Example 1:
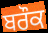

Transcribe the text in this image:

ਬਰੌਕ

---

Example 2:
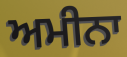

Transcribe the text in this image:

ਅਮੀਨਾ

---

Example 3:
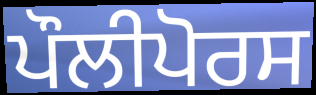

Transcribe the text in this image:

ਪੌਲੀਪੋਰਸ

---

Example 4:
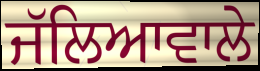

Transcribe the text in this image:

ਜੱਲਿਆਵਾਲੇ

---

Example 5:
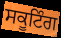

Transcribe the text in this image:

ਸਕੂਟਿੰਗ